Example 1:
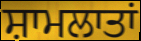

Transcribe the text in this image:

ਸ਼ਾਮਲਾਤਾਂ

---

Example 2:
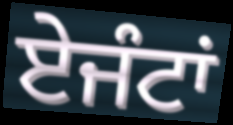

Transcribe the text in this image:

ਏਜੰਟਾਂ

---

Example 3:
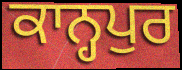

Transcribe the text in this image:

ਕਾਨ੍ਹਪੁਰ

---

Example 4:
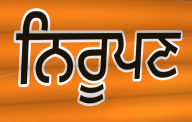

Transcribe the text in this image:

ਨਿਰੂਪਣ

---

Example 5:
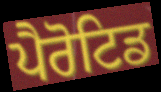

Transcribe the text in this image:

ਪੈਰੋਟਿਡ